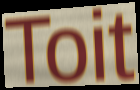
Toit